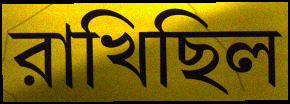
রাখিছিল